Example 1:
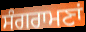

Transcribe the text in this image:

ਸੰਗਰਾਮਣਾਂ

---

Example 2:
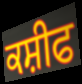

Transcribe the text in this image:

ਕਸ਼ੀਫ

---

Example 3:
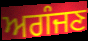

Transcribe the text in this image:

ਅਗੰਜਣ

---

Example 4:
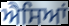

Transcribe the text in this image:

ਐਸਿਆਂ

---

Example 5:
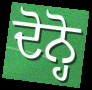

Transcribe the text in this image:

ਦੋਨ੍ਹੋ